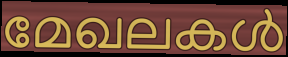
മേഖലകൾ